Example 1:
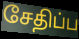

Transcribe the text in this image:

சேதிப்ப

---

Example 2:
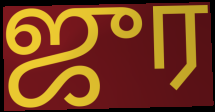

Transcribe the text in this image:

ஜுர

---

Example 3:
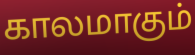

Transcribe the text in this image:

காலமாகும்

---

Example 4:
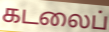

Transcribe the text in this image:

கடலைப்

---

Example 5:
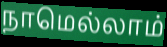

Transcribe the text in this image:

நாமெல்லாம்